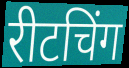
रीटचिंग